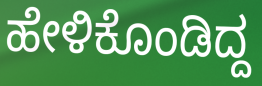
ಹೇಳಿಕೊಂಡಿದ್ದ